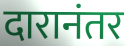
दारानंतर